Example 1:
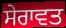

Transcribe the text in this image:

ਸੇਰਾਵਤ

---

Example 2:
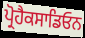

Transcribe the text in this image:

ਪ੍ਰੋਹੈਕਸਾਡਿਓਨ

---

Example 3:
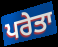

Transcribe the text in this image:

ਪਰੇਤਾ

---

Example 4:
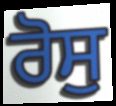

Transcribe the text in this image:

ਰੋਸੁ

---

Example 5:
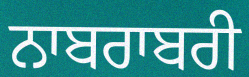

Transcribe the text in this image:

ਨਾਬਰਾਬਰੀ